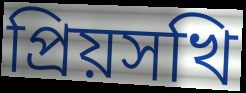
প্রিয়সখি